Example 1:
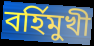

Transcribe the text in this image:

বর্হিমুখী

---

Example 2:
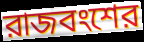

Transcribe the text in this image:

রাজবংশের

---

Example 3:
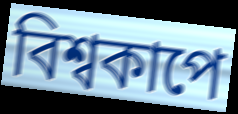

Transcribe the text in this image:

বিশ্বকাপে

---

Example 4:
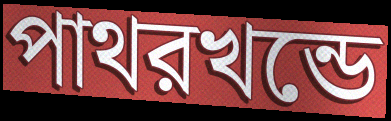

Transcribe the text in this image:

পাথরখন্ডে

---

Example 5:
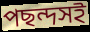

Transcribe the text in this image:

পছন্দসই